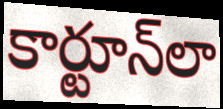
కార్టూన్‌లా